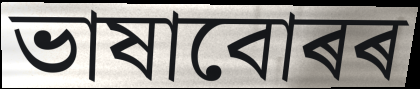
ভাষাবোৰৰ